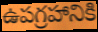
ఉపగ్రహానికి